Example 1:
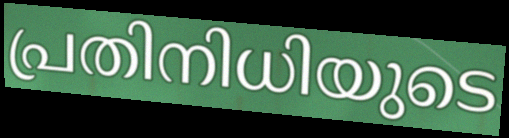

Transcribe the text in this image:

പ്രതിനിധിയുടെ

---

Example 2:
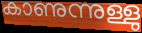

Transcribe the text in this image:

കാണുന്നുള്ളു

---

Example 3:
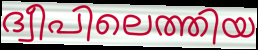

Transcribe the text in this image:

ദ്വീപിലെത്തിയ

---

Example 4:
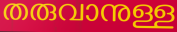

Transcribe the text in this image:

തരുവാനുള്ള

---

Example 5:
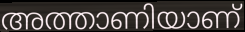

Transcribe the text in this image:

അത്താണിയാണ്